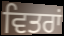
ਵਿਤਰਾਂ